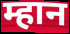
म्हान